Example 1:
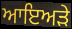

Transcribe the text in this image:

ਆਇਅੜੇ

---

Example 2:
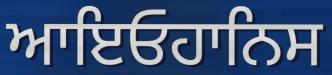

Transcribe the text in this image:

ਆਇਓਹਾਨਿਸ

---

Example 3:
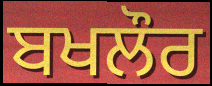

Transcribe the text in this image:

ਬਖਲੌਰ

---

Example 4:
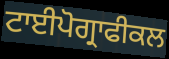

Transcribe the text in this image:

ਟਾਈਪੋਗ੍ਰਾਫੀਕਲ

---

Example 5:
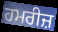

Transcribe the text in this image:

ਹਮਰੀਜ਼